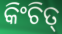
କିଂଚିତ୍